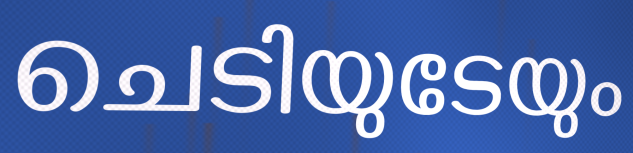
ചെടിയുടേയും